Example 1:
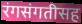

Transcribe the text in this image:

रंगसंगतीसह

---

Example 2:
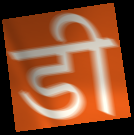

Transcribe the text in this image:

डी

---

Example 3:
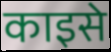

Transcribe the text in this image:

काइसे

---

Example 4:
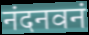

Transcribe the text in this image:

नंदनवनं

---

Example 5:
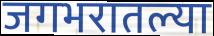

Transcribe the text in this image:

जगभरातल्या